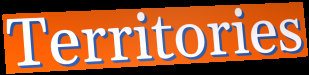
Territories